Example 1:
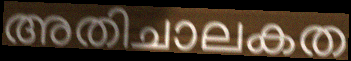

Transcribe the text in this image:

അതിചാലകത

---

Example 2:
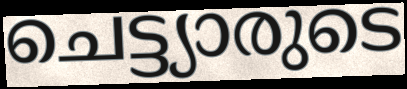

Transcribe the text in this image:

ചെട്ട്യാരുടെ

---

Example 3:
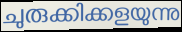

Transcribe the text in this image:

ചുരുക്കിക്കളയുന്നു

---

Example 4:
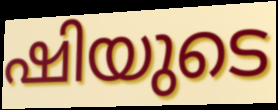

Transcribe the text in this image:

ഷിയുടെ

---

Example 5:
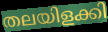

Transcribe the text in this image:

തലയിളക്കി